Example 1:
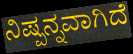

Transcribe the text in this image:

ನಿಷ್ಪನ್ನವಾಗಿದೆ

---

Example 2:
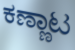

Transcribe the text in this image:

ಕಣ್ಣಾಟ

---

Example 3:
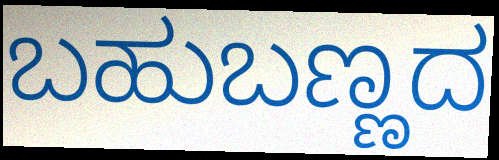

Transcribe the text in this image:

ಬಹುಬಣ್ಣದ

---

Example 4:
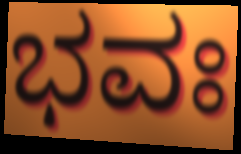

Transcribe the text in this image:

ಭವಃ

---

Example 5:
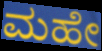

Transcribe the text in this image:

ಮಹೇ